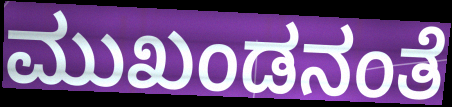
ಮುಖಂಡನಂತೆ